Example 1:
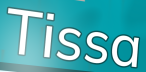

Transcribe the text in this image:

Tissa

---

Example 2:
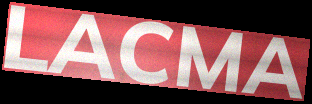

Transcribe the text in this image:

LACMA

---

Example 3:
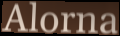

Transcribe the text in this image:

Alorna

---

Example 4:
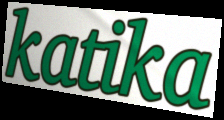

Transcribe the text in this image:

katika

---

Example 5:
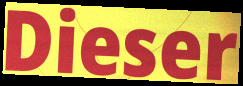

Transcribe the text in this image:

Dieser